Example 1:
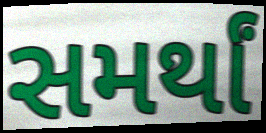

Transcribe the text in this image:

સમર્થાં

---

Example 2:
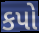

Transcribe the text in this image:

કપો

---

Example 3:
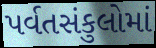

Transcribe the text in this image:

પર્વતસંકુલોમાં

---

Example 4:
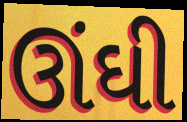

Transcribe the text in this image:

ઊંઘી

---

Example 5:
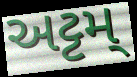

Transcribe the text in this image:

અટ્ટમ્